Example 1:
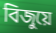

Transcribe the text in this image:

বিজুয়ে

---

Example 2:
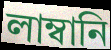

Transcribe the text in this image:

লাম্বানি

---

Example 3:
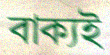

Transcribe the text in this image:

বাক্যই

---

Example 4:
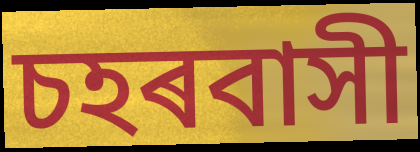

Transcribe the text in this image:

চহৰবাসী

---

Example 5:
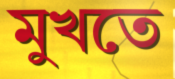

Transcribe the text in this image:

মুখতে